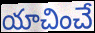
యాచించే